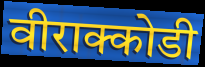
वीराक्कोडी